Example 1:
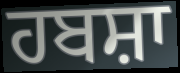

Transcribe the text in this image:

ਹਬਸ਼ਾ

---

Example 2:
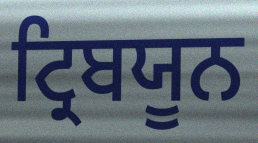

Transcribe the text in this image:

ਟ੍ਰਿਬਯੂਨ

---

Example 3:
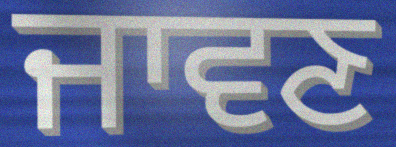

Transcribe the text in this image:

ਜਾਵਣ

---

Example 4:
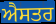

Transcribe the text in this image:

ਐਸਤਰ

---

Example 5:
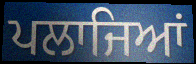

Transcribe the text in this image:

ਪਲਾਜਿਆਂ